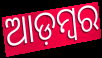
ଆଡ଼ମ୍ୱର